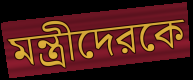
মন্ত্রীদেরকে